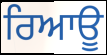
ਰਿਆਊ